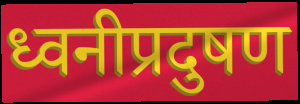
ध्वनीप्रदुषण